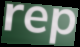
rep